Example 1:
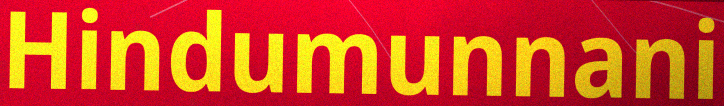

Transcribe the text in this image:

Hindumunnani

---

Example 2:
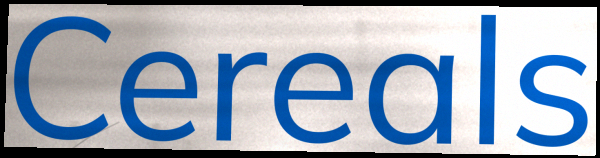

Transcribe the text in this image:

Cereals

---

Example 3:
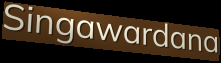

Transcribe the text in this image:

Singawardana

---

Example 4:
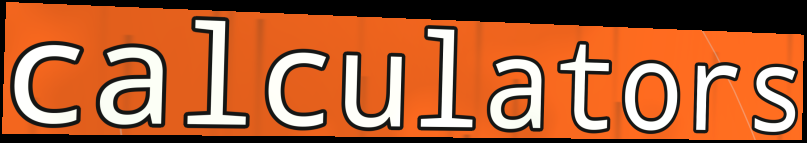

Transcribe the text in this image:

calculators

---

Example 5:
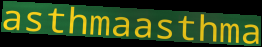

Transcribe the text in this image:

asthmaasthma